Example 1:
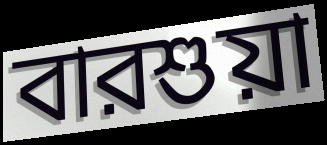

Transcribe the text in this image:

বারশুয়া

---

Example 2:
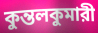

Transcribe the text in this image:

কুন্তলকুমারী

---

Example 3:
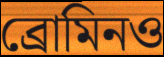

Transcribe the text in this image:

ব্রোমিনও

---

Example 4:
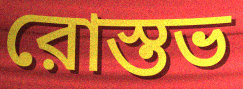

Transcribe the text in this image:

রোস্তভ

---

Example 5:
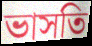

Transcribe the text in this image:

ভাসতি